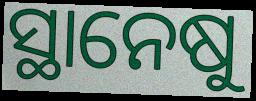
ସ୍ଥାନେଷୁ